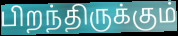
பிறந்திருக்கும்